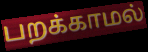
பறக்காமல்